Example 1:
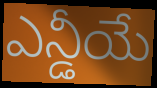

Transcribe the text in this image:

ఎన్డీయే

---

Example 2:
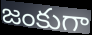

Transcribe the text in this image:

జంకుగా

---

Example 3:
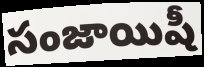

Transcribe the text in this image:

సంజాయిషీ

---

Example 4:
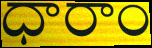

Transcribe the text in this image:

ధారాం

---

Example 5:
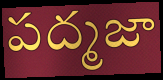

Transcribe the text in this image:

పద్మజా